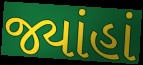
જ્યાંહાં